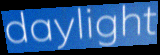
daylight